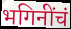
भगिनींचं